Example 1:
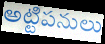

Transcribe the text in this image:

అట్టిపనులు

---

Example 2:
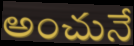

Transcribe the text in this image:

అంచునే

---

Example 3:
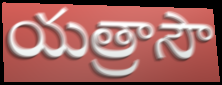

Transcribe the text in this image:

యత్రాసౌ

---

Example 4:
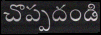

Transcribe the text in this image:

చొప్పదండి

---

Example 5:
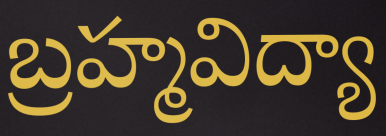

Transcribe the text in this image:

బ్రహ్మవిద్యా